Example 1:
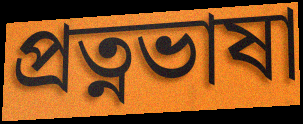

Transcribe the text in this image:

প্রত্নভাষা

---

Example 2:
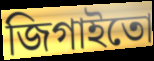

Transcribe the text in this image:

জিগাইতো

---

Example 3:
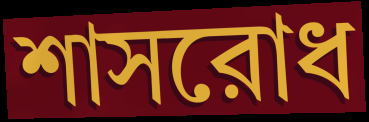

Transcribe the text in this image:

শাসরোধ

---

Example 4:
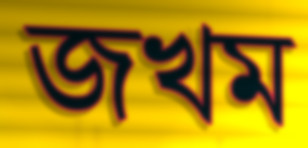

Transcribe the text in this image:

জখম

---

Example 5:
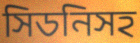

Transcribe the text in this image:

সিডনিসহ